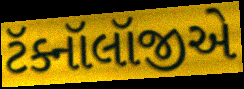
ટૅક્નૉલૉજીએ